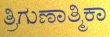
ತ್ರಿಗುಣಾತ್ಮಿಕಾ